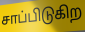
சாப்பிடுகிற